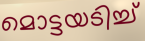
മൊട്ടയടിച്ച്